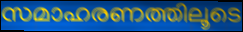
സമാഹരണത്തിലൂടെ